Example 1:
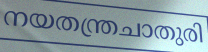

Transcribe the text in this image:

നയതന്ത്രചാതുരി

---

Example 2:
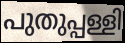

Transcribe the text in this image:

പുതുപ്പള്ളി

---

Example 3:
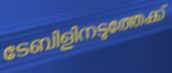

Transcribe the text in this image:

ടേബിളിനടുത്തേക്ക്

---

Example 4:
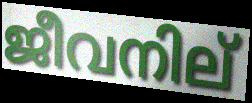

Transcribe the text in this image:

ജീവനില്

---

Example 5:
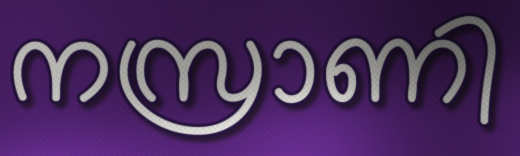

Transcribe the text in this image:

നസ്രാണി